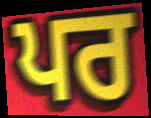
ਪਰ